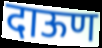
दाऊण